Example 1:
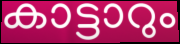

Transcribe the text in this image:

കാട്ടാറും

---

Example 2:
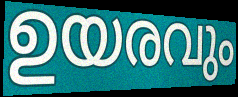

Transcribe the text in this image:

ഉയരവും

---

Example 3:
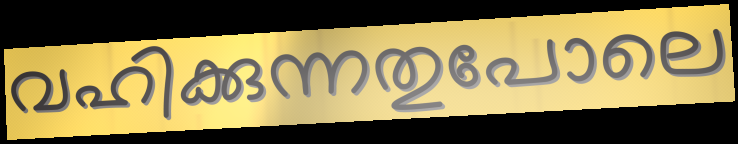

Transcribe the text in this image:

വഹിക്കുന്നതുപോലെ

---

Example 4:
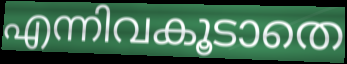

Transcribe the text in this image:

എന്നിവകൂടാതെ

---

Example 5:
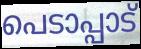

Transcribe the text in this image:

പെടാപ്പാട്